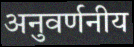
अनुवर्णनीय